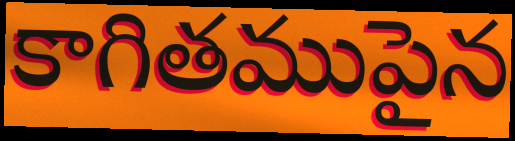
కాగితముపైన